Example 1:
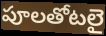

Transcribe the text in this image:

పూలతోటలై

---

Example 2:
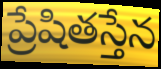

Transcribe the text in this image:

ప్రేషితస్తేన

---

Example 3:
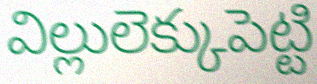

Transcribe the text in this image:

విల్లులెక్కుపెట్టి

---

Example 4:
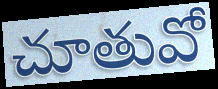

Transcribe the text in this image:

చూతువో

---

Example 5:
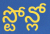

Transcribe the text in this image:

స్టోన్లో